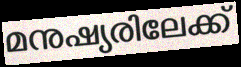
മനുഷ്യരിലേക്ക്